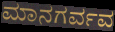
ಮಾನಗರ್ವವ